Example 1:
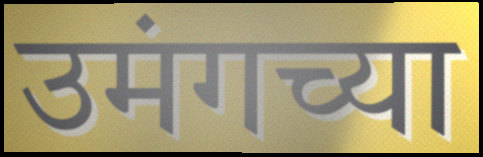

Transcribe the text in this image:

उमंगच्या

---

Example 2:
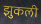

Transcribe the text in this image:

झुकली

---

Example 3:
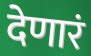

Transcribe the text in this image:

देणारं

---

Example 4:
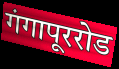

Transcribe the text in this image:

गंगापूररोड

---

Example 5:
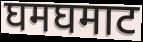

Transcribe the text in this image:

घमघमाट